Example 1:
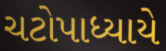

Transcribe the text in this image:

ચટોપાધ્યાયે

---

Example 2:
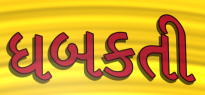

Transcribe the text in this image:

ધબકતી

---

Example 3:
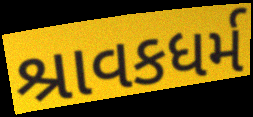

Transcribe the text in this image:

શ્રાવકધર્મ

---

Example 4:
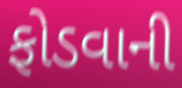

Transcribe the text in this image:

ફોડવાની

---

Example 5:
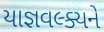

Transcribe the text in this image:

યાજ્ઞવલ્ક્યને